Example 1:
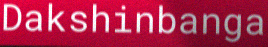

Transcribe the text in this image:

Dakshinbanga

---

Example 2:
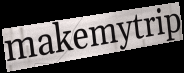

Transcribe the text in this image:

makemytrip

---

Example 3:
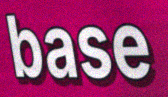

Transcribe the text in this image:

base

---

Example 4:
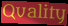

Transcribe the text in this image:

Quality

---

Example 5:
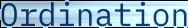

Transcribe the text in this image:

Ordination